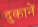
दुकानें